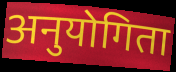
अनुयोगिता